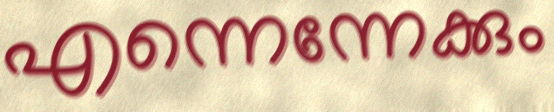
എന്നെന്നേക്കും